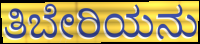
ತಿಬೇರಿಯನು